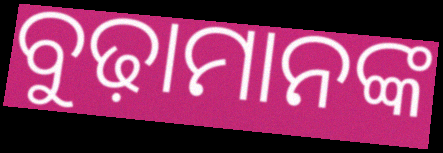
ବୁଢ଼ାମାନଙ୍କ